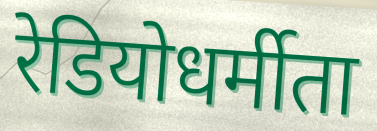
रेडियोधर्मीता